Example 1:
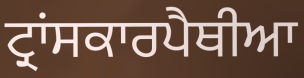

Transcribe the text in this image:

ਟ੍ਰਾਂਸਕਾਰਪੈਥੀਆ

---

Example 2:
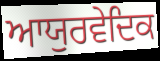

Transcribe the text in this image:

ਆਯੁਰਵੇਦਿਕ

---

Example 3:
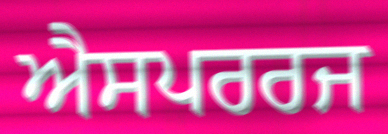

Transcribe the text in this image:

ਐਸਪਰਰਜ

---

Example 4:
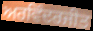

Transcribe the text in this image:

ਅਰਵਿੰਦਰਜੀਤ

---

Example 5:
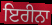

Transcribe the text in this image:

ਇਰੀਨਾ